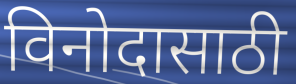
विनोदासाठी